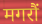
मगरौं